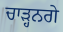
ਚਾੜ੍ਹਨਗੇ